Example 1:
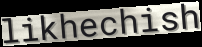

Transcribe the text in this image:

likhechish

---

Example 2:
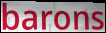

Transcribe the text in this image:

barons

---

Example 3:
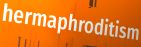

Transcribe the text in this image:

hermaphroditism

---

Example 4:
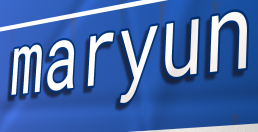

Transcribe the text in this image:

maryun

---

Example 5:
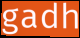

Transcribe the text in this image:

gadh